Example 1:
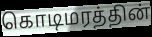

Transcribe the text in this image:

கொடிமரத்தின்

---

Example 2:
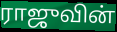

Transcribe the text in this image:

ராஜுவின்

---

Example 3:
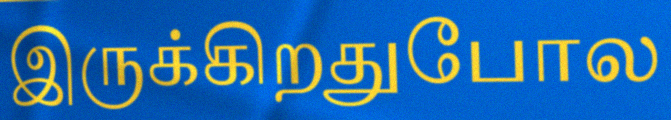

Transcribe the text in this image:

இருக்கிறதுபோல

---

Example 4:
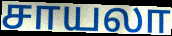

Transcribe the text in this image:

சாயலா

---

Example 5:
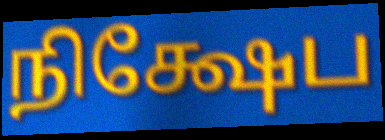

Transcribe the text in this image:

நிக்ஷேப